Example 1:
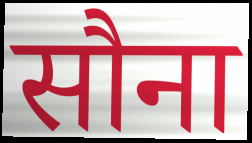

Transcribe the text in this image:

सौना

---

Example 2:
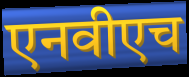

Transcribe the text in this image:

एनवीएच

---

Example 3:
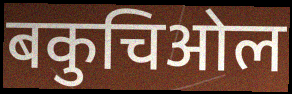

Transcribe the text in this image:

बकुचिओल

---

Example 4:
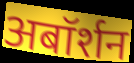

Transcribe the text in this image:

अबॉर्शन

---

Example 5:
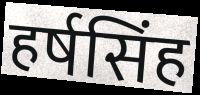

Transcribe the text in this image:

हर्षसिंह